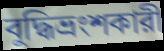
বুদ্ধিভ্রংশকারী